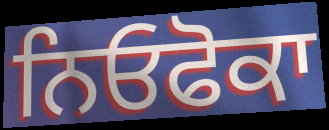
ਨਿਓਫੋਕਾ